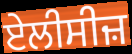
ਏਲੀਸੀਜ਼